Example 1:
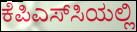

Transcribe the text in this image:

ಕೆಪಿಎಸ್‌ಸಿಯಲ್ಲಿ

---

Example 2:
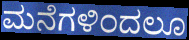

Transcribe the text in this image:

ಮನೆಗಳಿಂದಲೂ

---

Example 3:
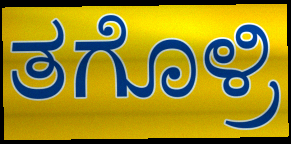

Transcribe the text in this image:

ತಗೊಳ್ರಿ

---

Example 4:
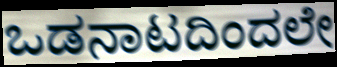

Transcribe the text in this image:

ಒಡನಾಟದಿಂದಲೇ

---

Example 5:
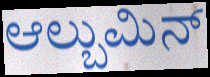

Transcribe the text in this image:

ಆಲ್ಬುಮಿನ್